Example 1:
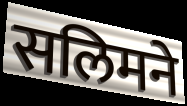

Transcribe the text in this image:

सलिमने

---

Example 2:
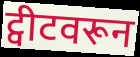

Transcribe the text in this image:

ट्वीटवरून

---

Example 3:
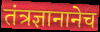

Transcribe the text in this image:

तंत्रज्ञानानेच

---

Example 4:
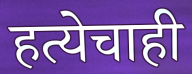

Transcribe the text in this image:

हत्येचाही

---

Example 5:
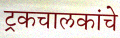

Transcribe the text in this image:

ट्रकचालकांचे